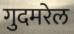
गुदमरेल